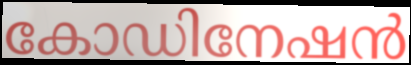
കോഡിനേഷൻ